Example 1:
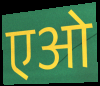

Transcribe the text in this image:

एओ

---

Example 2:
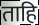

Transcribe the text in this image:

ताहि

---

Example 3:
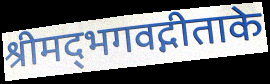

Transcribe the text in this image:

श्रीमद्भगवद्गीताके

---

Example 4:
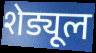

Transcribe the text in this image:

शेड्यूल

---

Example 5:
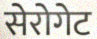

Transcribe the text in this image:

सेरोगेट